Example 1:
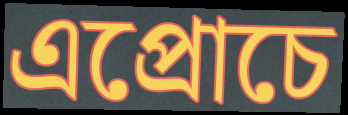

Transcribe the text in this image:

এপ্রোচে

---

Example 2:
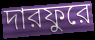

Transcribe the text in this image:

দারফুরে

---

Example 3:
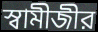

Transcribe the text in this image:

স্বামীজীর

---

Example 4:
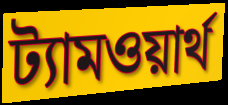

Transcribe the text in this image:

ট্যামওয়ার্থ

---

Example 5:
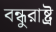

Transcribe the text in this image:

বন্ধুরাষ্ট্র